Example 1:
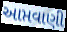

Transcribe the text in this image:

આપ્તવાણી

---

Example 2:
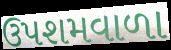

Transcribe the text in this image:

ઉપશમવાળા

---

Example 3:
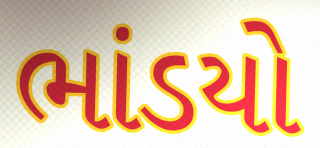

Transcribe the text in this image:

ભાંડયો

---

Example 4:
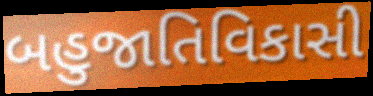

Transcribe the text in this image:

બહુજાતિવિકાસી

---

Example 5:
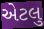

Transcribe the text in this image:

એટલુ